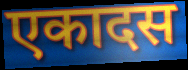
एकादस